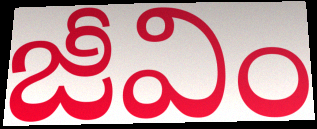
జీవిం